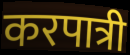
करपात्री